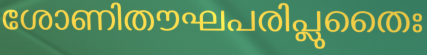
ശോണിതൗഘപരിപ്ലുതൈഃ